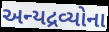
અન્યદ્રવ્યોના